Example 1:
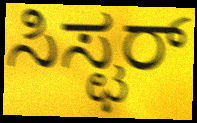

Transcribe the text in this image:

ಸಿಸ್ಟರ್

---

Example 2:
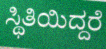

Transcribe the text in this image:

ಸ್ಥಿತಿಯಿದ್ದರೆ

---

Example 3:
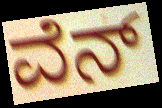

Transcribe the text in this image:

ವೆನ್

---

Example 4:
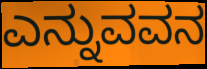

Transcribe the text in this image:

ಎನ್ನುವವನ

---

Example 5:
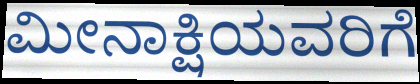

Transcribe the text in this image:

ಮೀನಾಕ್ಷಿಯವರಿಗೆ